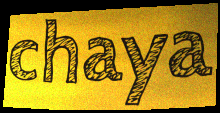
chaya